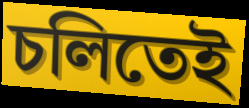
চলিতেই